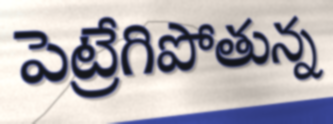
పెట్రేగిపోతున్న